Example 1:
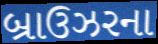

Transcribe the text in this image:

બ્રાઉઝરના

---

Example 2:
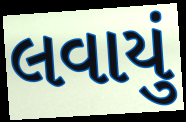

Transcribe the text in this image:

લવાયું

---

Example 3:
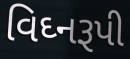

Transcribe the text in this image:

વિઘ્નરૂપી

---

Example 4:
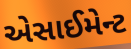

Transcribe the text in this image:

એસાઈમેન્ટ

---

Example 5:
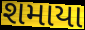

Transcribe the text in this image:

શમાયા